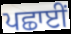
ਪਛਾਈਂ